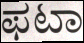
ಫಟಾ